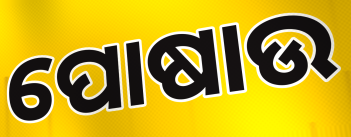
ପୋଷାଉ